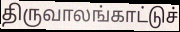
திருவாலங்காட்டுச்